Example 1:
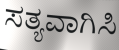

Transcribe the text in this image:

ಸತ್ಯವಾಗಿಸಿ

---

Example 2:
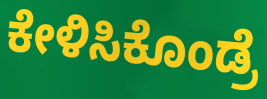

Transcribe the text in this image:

ಕೇಳಿಸಿಕೊಂಡ್ರೆ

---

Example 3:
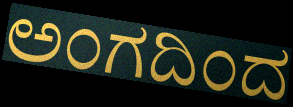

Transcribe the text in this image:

ಅಂಗದಿಂದ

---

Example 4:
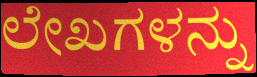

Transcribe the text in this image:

ಲೇಖಗಳನ್ನು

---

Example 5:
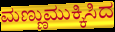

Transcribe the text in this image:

ಮಣ್ಣುಮುಕ್ಕಿಸಿದ